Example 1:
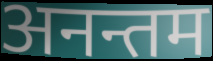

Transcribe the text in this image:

अनन्तम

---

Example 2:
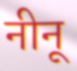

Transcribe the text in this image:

नीनू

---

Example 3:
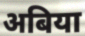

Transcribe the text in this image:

अबिया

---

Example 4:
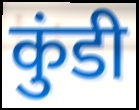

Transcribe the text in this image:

कुंडी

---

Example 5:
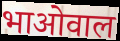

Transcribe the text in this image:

भाओवाल